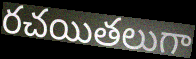
రచయితలుగా